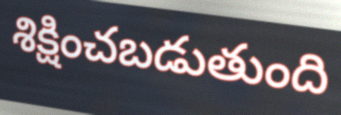
శిక్షించబడుతుంది